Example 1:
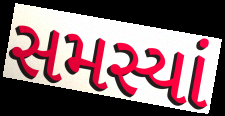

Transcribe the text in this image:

સમસ્યાં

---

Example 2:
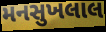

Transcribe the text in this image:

મનસુખલાલ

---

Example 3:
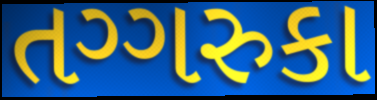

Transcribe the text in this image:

તગ્ગરુકા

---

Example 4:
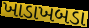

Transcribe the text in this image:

ખાડાખબડા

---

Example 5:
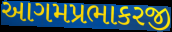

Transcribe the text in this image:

આગમપ્રભાકરજી